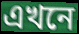
এখনে